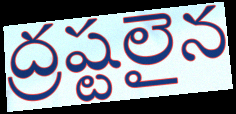
ద్రష్టలైన